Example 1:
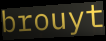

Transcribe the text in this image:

brouyt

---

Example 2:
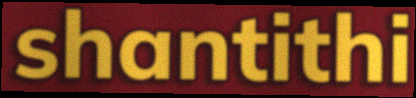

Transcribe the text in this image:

shantithi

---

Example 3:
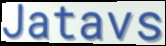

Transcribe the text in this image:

Jatavs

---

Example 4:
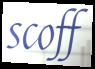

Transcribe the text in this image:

scoff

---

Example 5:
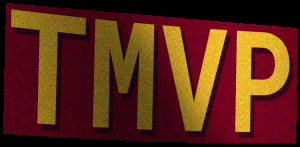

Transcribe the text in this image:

TMVP